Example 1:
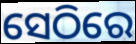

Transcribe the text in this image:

ସେଠିରେ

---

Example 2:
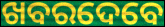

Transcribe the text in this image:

ଖବରଦେବେ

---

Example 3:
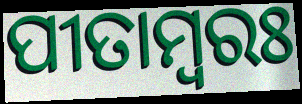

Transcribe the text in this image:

ପୀତାମ୍ୱରଃ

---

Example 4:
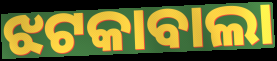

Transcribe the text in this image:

ଝଟକାବାଲା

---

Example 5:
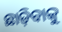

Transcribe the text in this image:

ଛାଡ଼ିବାକୁ